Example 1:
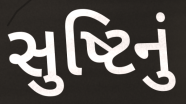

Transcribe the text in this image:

સુષ્ટિનું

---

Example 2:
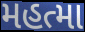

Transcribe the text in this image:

મહત્મા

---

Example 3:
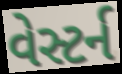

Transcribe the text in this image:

વેસ્ટર્ન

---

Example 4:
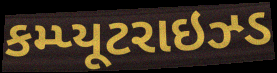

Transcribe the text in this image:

કમ્પ્યૂટરાઇઝ્ડ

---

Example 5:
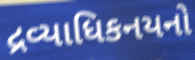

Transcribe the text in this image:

દ્રવ્યાધિકનયનો